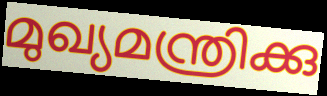
മുഖ്യമന്ത്രിക്കു